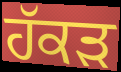
ਹੱਕੜ